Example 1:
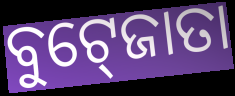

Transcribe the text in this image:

ବୁଟ୍‍ଜୋତା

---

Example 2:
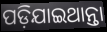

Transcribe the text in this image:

ପଡ଼ିଯାଇଥାନ୍ତା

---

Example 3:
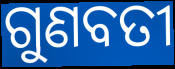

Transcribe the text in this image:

ଗୁଣବତୀ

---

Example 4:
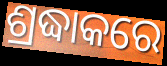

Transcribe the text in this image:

ଶ୍ରଦ୍ଧାକରେ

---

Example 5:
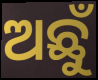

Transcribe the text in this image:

ଅଛୁଁ